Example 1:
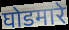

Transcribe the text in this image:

घोडमारे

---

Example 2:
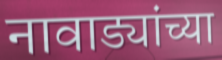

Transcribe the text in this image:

नावाड्यांच्या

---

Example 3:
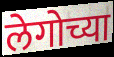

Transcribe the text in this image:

लेगोच्या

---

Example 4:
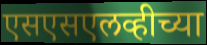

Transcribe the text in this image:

एसएसएलव्हीच्या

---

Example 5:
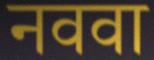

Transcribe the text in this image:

नववा